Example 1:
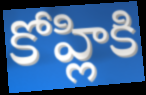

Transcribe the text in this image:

కోహ్లికి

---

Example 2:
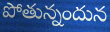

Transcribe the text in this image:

పోతున్నందున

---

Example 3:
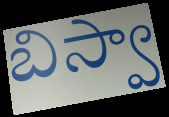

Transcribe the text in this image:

బిస్వా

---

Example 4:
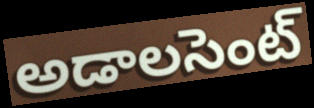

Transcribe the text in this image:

అడాలసెంట్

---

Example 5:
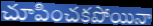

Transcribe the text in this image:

చూపించకపోయినా